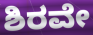
ಶಿರವೇ